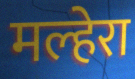
मल्हेरा